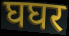
घघर